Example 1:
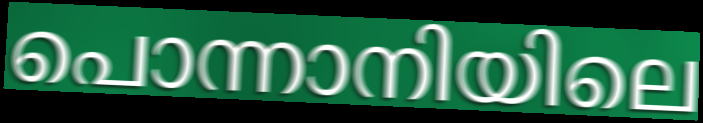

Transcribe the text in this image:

പൊന്നാനിയിലെ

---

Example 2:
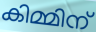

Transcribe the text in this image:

കിമ്മിന്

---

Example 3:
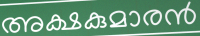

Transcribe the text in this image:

അക്ഷകുമാരൻ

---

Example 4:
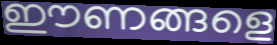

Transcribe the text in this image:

ഈണങ്ങളെ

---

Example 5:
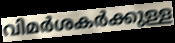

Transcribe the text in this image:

വിമർശകർക്കുള്ള